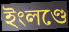
ইংলণ্ডে